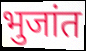
भुजांत